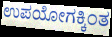
ಉಪಯೋಗಕ್ಕಿಂತ